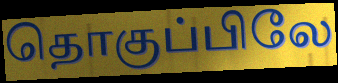
தொகுப்பிலே